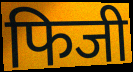
फिजी